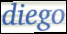
diego